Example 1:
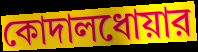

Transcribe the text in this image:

কোদালধোয়ার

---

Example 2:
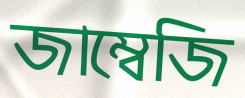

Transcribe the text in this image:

জাম্বেজি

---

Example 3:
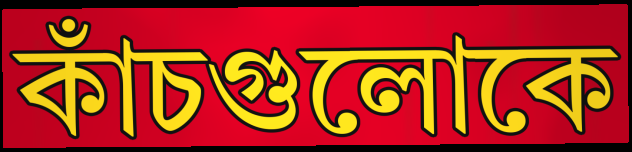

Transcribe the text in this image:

কাঁচগুলোকে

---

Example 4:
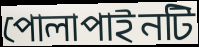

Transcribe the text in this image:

পোলাপাইনটি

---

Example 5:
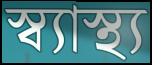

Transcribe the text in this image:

স্ব্যাস্থ্য